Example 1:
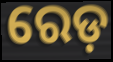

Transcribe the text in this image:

ରେଡ଼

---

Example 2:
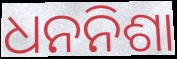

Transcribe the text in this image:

ଧନନିଶା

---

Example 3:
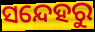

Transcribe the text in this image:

ସନ୍ଦେହରୁ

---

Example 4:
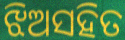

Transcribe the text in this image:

ଝିଅସହିତ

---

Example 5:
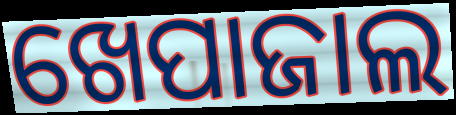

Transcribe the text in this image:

ଖେପାଜାଲ